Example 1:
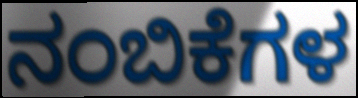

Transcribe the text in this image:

ನಂಬಿಕೆಗಳ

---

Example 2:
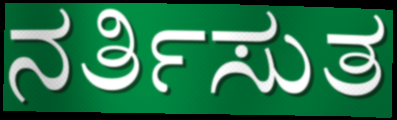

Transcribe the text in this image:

ನರ್ತಿಸುತ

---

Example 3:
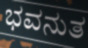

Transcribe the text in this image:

ಭವನುತ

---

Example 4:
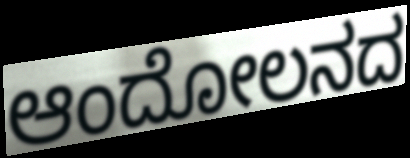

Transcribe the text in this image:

ಆಂದೋಲನದ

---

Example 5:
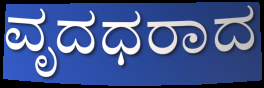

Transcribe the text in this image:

ವೃದಧರಾದ